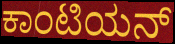
ಕಾಂಟಿಯನ್